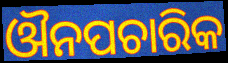
ଔନପଚାରିକ